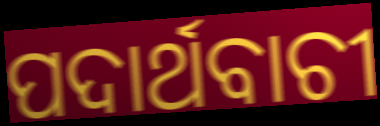
ପଦାର୍ଥବାଚୀ